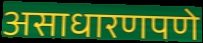
असाधारणपणे